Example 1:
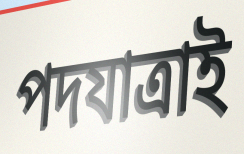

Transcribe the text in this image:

পদযাত্রাই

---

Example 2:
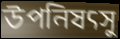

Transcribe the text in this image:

উপনিষৎসু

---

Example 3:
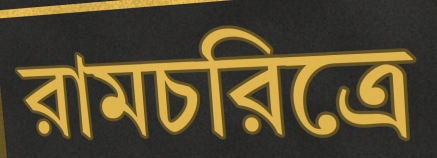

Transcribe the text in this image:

রামচরিত্রে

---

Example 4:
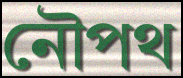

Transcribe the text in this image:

নৌপথ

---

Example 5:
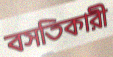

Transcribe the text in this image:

বসতিকারী